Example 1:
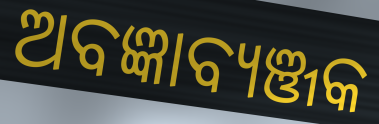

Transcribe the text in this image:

ଅବଜ୍ଞାବ୍ୟଞ୍ଜକ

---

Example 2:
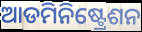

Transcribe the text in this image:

ଆଡମିନିଷ୍ଟ୍ରେଶନ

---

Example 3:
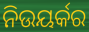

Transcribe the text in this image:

ନିଉୟର୍କର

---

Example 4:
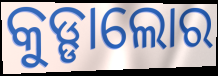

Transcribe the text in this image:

କୁଡ୍ଡାଲୋର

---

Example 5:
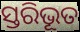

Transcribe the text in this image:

ସ୍ତରିଭୂତ